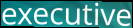
executive